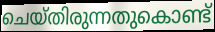
ചെയ്തിരുന്നതുകൊണ്ട്